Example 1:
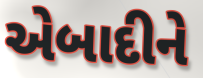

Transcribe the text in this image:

એબાદીને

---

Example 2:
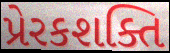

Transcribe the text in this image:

પ્રેરકશક્તિ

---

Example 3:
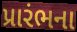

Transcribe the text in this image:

પ્રારંભના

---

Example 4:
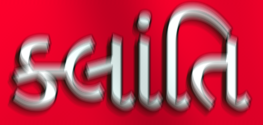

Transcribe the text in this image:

ક્લાંતિ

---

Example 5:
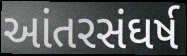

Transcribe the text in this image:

આંતરસંઘર્ષ